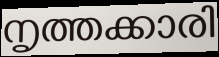
നൃത്തക്കാരി